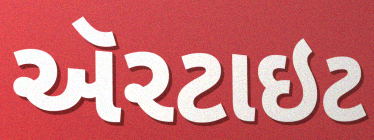
ઍરટાઇટ